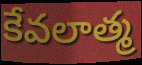
కేవలాత్మ